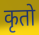
कृतो